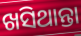
ଖସିଥାନ୍ତା